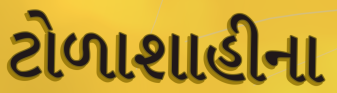
ટોળાશાહીના